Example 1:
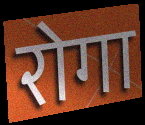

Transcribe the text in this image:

रोगा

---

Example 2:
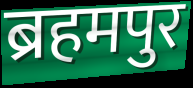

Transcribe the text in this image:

ब्रहमपुर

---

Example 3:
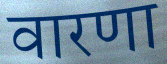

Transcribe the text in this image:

वारणा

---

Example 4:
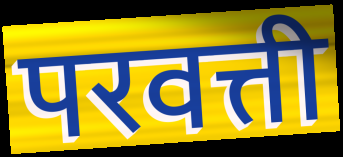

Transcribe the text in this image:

परवत्ती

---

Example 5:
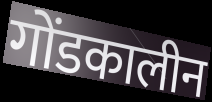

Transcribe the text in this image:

गोंडकालीन